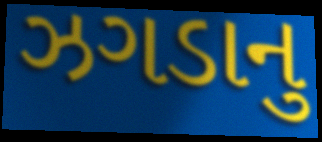
ઝગડાનુ